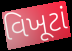
વિખૂટાં